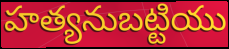
హత్యనుబట్టియు